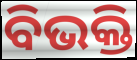
ବିଭକ୍ତି